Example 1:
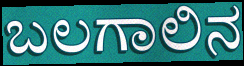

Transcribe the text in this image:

ಬಲಗಾಲಿನ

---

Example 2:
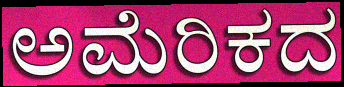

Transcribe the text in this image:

ಅಮೆರಿಕದ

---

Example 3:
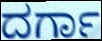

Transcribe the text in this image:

ದರ್ಗಾ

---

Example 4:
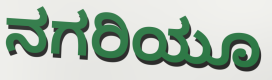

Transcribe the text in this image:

ನಗರಿಯೂ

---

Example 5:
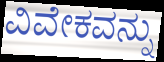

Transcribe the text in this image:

ವಿವೇಕವನ್ನು